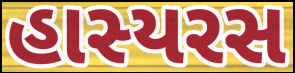
હાસ્યરસ